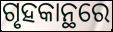
ଗୃହକାନ୍ଥରେ